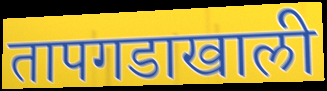
तापगडाखाली